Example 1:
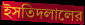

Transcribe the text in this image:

ইসতিদলালের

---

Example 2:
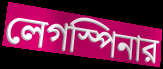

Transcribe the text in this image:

লেগস্পিনার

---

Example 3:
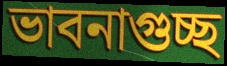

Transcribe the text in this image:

ভাবনাগুচ্ছ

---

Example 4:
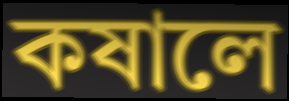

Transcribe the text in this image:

কষালে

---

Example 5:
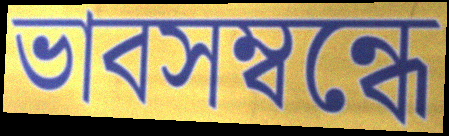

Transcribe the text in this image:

ভাবসম্বন্ধে